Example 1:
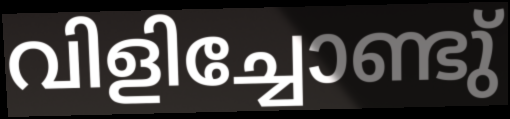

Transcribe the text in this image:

വിളിച്ചോണ്ടു്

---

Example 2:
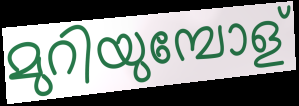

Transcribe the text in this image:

മുറിയുമ്പോള്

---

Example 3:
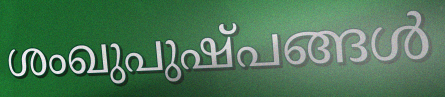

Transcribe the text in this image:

ശംഖുപുഷ്പങ്ങൾ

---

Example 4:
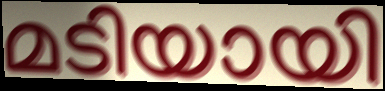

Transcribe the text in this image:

മടിയായി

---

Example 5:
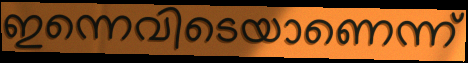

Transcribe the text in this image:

ഇന്നെവിടെയാണെന്ന്